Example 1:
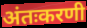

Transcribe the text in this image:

अंतःकरणी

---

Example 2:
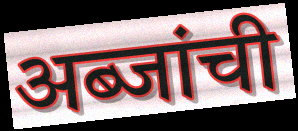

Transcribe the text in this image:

अब्जांची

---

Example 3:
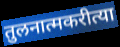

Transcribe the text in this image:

तुलनात्मकरीत्या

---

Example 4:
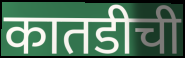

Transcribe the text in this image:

कातडीची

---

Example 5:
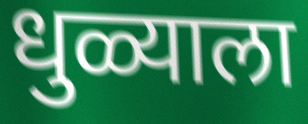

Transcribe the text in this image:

धुळ्याला